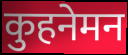
कुहनेमन